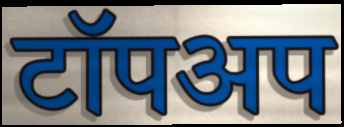
टॉपअप